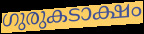
ഗുരുകടാക്ഷം